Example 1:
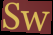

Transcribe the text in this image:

Sw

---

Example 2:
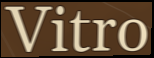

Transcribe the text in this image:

Vitro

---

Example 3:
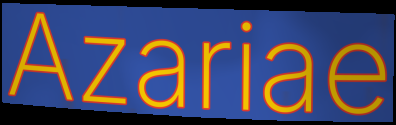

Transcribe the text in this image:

Azariae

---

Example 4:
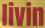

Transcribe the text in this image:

livin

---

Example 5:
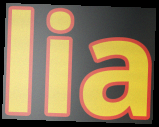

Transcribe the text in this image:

lia